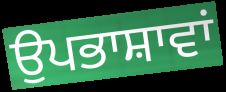
ਉਪਭਾਸ਼ਾਵਾਂ